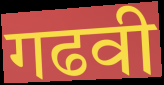
गढवी